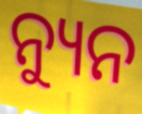
ନ୍ୟୁନ